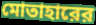
মোতাহারের